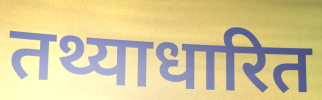
तथ्याधारित